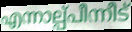
എന്നാല്പ്പീന്നീട്